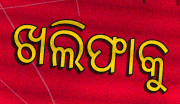
ଖଲିଫାକୁ